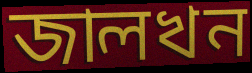
জালখন